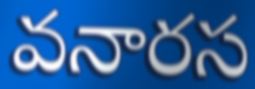
వనారస